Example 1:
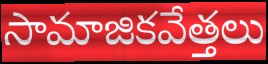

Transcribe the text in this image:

సామాజికవేత్తలు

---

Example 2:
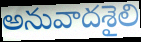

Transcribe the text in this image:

అనువాదశైలి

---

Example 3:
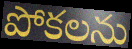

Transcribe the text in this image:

పోకలను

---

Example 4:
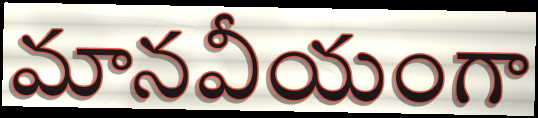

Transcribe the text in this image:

మానవీయంగా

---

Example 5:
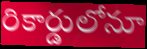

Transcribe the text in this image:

రికార్డులోనూ